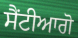
ਸੈਂਟੀਆਗੋ